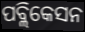
ପବ୍ଲିକେସନ